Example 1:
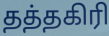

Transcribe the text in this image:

தத்தகிரி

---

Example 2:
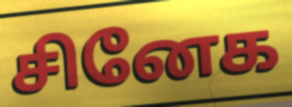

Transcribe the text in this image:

சினேக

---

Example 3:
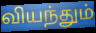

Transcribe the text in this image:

வியந்தும்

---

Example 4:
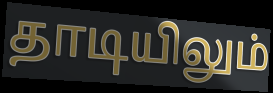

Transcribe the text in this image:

தாடியிலும்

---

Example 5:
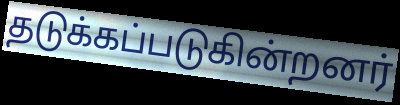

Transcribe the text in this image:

தடுக்கப்படுகின்றனர்